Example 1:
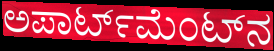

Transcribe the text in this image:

ಅಪಾರ್ಟ್‌ಮೆಂಟ್‌ನ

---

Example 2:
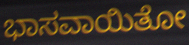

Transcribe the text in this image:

ಭಾಸವಾಯಿತೋ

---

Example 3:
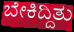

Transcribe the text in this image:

ಬೇಕಿದ್ದಿತು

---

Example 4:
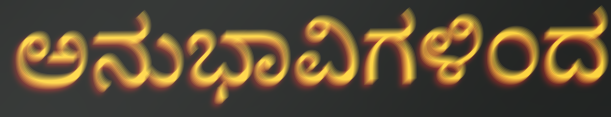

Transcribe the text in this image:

ಅನುಭಾವಿಗಳಿಂದ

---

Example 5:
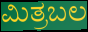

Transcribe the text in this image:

ಮಿತ್ರಬಲ